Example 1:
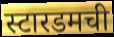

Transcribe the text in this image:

स्टारडमची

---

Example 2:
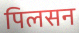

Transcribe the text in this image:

पिलसन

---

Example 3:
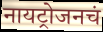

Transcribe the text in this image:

नायट्रोजनचं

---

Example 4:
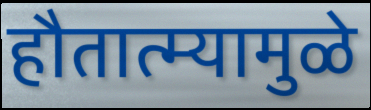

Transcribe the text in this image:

हौतात्म्यामुळे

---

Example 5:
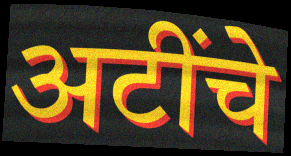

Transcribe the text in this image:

अटींचे